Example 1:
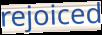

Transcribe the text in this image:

rejoiced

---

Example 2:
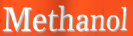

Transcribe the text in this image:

Methanol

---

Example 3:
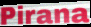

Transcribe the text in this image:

Pirana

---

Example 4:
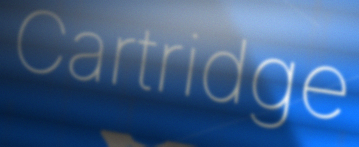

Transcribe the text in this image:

Cartridge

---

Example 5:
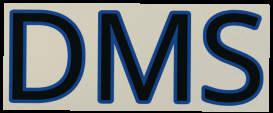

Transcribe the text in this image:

DMS